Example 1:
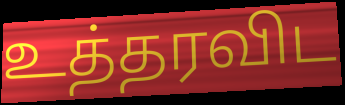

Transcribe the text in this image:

உத்தரவிட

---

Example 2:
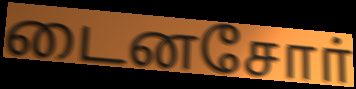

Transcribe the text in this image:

டைனசோர்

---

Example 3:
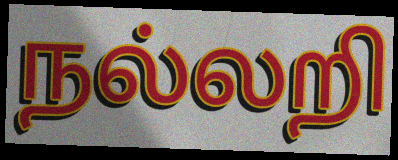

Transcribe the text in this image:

நல்லறி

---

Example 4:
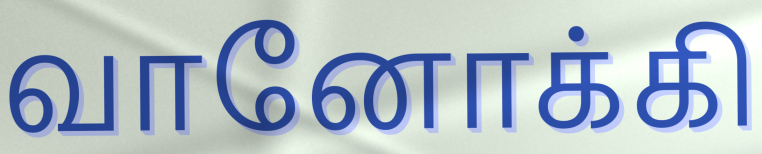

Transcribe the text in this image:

வானோக்கி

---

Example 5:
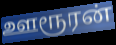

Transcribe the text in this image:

ஊரூரன்